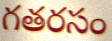
గతరసం